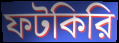
ফটকিরি